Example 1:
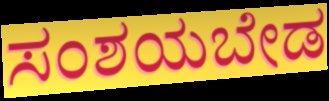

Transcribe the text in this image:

ಸಂಶಯಬೇಡ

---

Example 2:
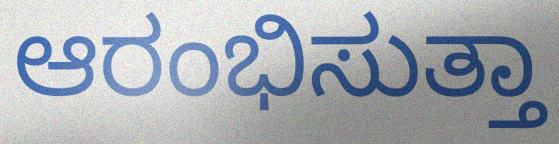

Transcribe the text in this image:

ಆರಂಭಿಸುತ್ತಾ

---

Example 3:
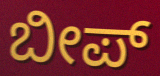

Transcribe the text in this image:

ಬೀಪ್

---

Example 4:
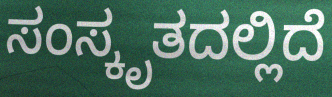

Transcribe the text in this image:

ಸಂಸ್ಕೃತದಲ್ಲಿದೆ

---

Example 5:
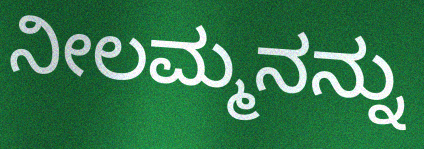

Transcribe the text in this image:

ನೀಲಮ್ಮನನ್ನು